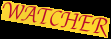
WATCHER